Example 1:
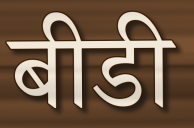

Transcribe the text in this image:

बीडी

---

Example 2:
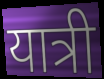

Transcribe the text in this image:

यात्री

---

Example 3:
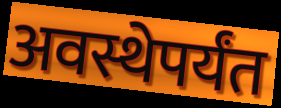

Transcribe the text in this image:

अवस्थेपर्यंत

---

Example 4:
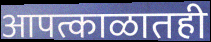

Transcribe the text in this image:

आपत्काळातही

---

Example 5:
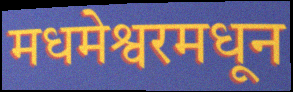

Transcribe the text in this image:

मधमेश्वरमधून